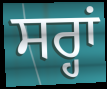
ਸਰ੍ਹਾਂ